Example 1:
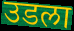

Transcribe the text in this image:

उडला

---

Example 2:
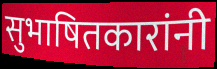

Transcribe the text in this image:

सुभाषितकारांनी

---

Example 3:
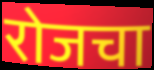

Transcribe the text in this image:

रोजचा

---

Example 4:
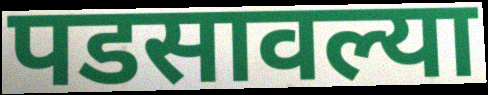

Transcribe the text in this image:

पडसावल्या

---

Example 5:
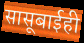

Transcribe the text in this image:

सासूबाईही